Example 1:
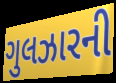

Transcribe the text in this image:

ગુલઝારની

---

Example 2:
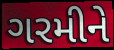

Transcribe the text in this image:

ગરમીને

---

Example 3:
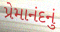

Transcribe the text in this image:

પ્રેમાનંદનું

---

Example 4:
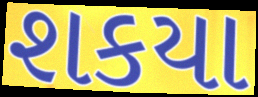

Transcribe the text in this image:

શકયા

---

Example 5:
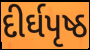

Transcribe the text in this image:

દીર્ઘપૃષ્ઠ